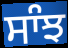
ਸਾੰਝ